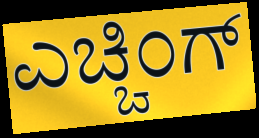
ಎಚ್ಚಿಂಗ್